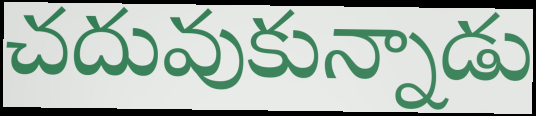
చదువుకున్నాడు